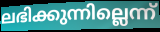
ലഭിക്കുന്നില്ലെന്ന്